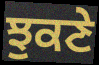
ਝੁਕਣੇ